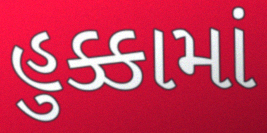
હુક્કામાં